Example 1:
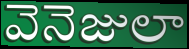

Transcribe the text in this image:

వెనెజులా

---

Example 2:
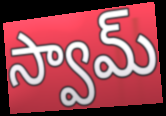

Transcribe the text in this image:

స్వామ్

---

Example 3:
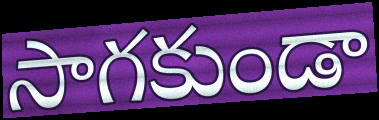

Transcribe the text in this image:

సాగకుండా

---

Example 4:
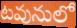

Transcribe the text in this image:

టవునులో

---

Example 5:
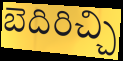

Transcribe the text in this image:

బెదిరిచ్చి